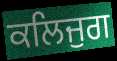
ਕਲਿਜੁਗ